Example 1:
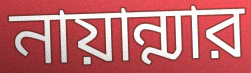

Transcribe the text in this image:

নায়ান্মার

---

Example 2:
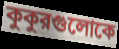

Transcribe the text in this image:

কুকুরগুলোকে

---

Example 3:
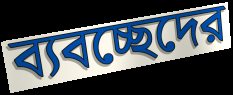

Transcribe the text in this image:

ব্যবচ্ছেদের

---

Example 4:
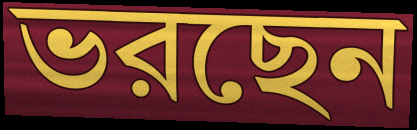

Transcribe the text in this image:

ভরছেন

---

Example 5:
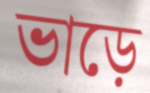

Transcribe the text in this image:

ভাড়ে